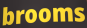
brooms